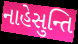
નાહેસુન્તિ